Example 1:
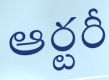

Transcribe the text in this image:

ఆర్టరీ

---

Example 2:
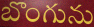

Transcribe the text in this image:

బొంగును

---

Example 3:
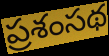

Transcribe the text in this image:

ప్రశంసథ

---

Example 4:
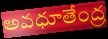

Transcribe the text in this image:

అవధూతేంద్ర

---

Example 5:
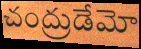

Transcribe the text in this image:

చంద్రుడేమో